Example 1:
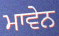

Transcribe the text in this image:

ਮਾਵੇਨ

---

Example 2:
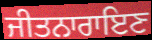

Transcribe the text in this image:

ਜੀਤਨਾਰਾਇਣ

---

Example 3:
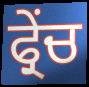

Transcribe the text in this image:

ਫ੍ਰੇੰਚ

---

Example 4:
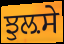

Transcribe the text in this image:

ਝੁਲ਼ਸੇ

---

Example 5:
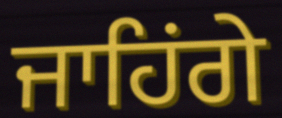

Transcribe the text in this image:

ਜਾਹਿਂਗੇ